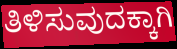
ತಿಳಿಸುವುದಕ್ಕಾಗಿ